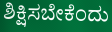
ಶಿಕ್ಷಿಸಬೇಕೆಂದು